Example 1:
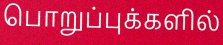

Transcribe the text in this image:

பொறுப்புக்களில்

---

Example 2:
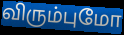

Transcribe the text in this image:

விரும்புமோ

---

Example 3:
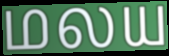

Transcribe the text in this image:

மலய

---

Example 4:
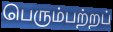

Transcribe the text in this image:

பெரும்பற்றப்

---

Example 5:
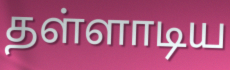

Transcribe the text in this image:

தள்ளாடிய